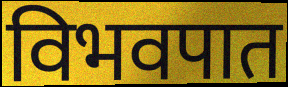
विभवपात